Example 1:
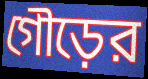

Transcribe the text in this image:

গৌড়ের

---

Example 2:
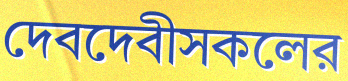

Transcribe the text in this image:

দেবদেবীসকলের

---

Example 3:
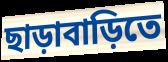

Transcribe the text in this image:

ছাড়াবাড়িতে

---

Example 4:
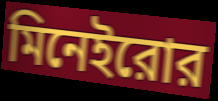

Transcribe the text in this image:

মিনেইরোর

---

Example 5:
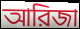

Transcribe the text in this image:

আরিজা